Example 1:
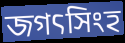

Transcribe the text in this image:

জগৎসিংহ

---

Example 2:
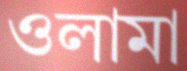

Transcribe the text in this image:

ওলামা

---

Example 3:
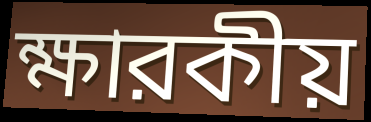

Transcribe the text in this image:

ক্ষারকীয়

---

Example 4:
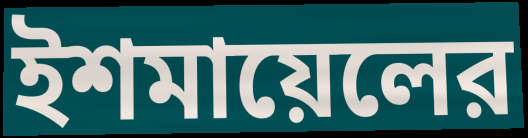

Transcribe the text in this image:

ইশমায়েলের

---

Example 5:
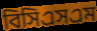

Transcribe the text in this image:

বিসিএসএম